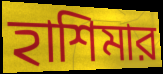
হাশিমার